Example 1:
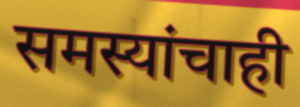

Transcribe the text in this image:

समस्यांचाही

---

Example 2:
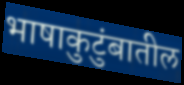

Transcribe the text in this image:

भाषाकुटुंबातील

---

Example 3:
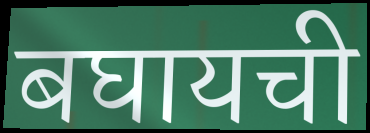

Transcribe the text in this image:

बघायची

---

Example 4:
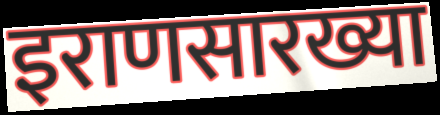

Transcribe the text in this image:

इराणसारख्या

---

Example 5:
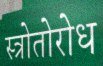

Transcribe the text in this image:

स्त्रोतोरोध